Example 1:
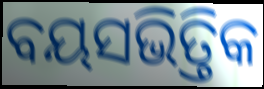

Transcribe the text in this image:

ବୟସଭିତ୍ତିକ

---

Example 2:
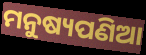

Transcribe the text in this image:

ମନୁଷ୍ୟପଣିଆ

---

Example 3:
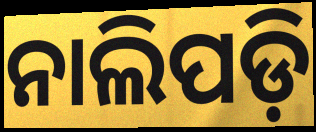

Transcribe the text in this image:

ନାଲିପଡ଼ି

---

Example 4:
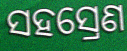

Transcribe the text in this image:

ସହସ୍ରେଣ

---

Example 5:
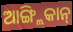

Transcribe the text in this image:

ଆଙ୍ଗ୍ଲିକାନ୍